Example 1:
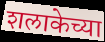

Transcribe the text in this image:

शलाकेच्या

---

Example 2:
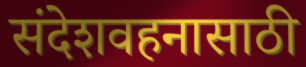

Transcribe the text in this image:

संदेशवहनासाठी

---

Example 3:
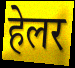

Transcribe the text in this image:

हेलर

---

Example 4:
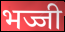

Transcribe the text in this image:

भज्जी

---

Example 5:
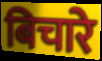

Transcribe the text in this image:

बिचारे